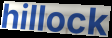
hillock